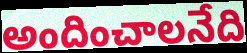
అందించాలనేది